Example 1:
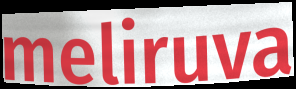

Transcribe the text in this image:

meliruva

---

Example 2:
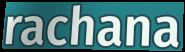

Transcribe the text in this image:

rachana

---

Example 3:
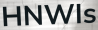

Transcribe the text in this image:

HNWIs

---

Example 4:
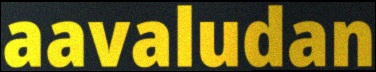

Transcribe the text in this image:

aavaludan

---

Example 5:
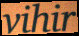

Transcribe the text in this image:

vihir